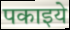
पकाइये